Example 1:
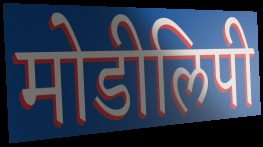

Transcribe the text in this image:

मोडीलिपी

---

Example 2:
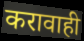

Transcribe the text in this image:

करावाही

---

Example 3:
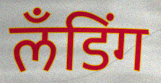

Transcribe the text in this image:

लँडिंग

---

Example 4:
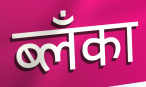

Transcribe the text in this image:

ब्लँका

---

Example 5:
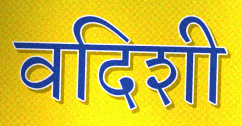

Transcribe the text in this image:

वदिशी